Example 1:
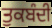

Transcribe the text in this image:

ਤੁਕਬੰਦੀ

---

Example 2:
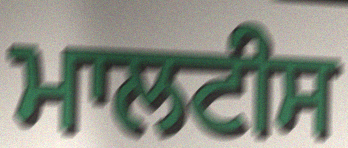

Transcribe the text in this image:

ਮਾਲਟੀਸ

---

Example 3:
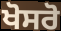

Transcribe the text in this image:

ਖੋਸਰੋ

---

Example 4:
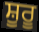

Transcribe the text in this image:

ਸ਼ੂਰੂ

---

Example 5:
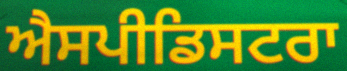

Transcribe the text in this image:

ਐਸਪੀਡਿਸਟਰਾ